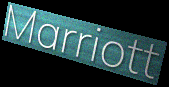
Marriott